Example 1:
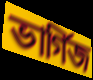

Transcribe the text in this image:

ভাৰ্গিজ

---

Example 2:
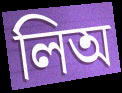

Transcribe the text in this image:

লিঅ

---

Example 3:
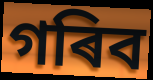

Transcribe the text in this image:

গৰিব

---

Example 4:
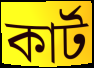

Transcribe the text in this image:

কাৰ্ট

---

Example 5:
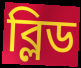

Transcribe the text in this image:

ব্লিড